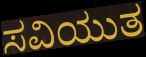
ಸವಿಯುತ